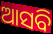
ଆସବି